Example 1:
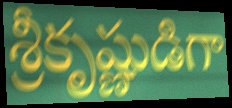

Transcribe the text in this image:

శ్రీకృష్ణుడిగా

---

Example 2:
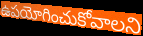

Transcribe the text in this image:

ఉపయోగించుకోవాలని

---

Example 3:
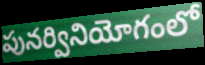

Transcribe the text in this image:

పునర్వినియోగంలో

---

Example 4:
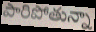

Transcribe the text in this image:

పారిపోతున్నా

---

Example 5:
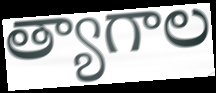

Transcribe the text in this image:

త్యాగాల